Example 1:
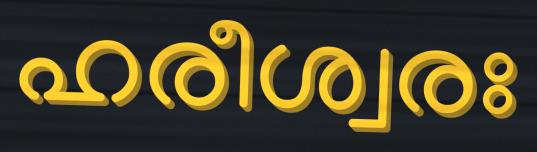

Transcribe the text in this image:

ഹരീശ്വരഃ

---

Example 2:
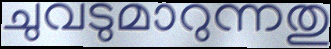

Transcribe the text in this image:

ചുവടുമാറുന്നതു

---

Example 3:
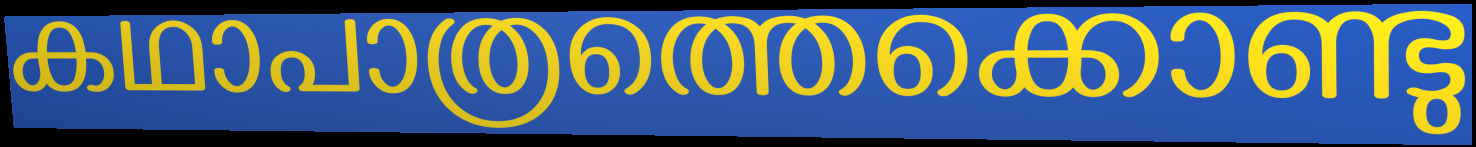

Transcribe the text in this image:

കഥാപാത്രത്തെക്കൊണ്ടു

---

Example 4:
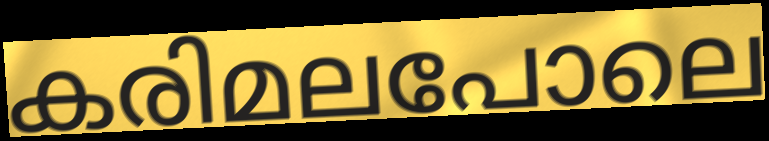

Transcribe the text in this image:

കരിമലപോലെ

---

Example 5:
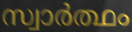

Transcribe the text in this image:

സ്വാർത്ഥം